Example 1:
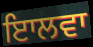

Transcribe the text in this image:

ਇਾਲਵਾ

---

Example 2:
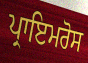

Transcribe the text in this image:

ਪ੍ਰਾਇਮਰੋਸ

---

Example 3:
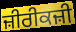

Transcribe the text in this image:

ਜ਼ੀਰੀਕਜ਼ੀ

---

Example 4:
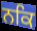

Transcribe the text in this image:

ਨਕਿ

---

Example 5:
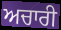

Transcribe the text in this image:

ਅਚਾਰੀ